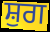
ਸ਼ੁਗ